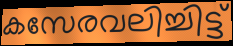
കസേരവലിച്ചിട്ട്